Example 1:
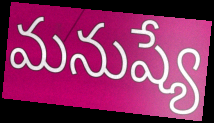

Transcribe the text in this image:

మనుష్యే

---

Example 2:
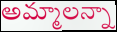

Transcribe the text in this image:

అమ్మాలన్నా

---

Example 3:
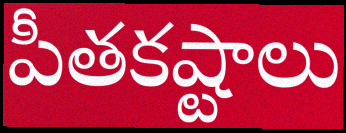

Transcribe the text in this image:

పీతకష్టాలు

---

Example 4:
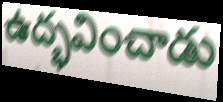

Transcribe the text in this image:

ఉద్భవించాడు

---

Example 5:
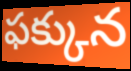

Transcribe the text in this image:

ఫక్కున